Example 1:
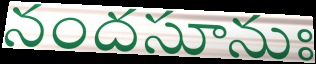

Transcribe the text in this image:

నందసూనుః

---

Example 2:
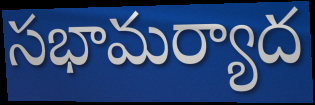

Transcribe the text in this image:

సభామర్యాద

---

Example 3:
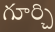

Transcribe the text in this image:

గూర్చి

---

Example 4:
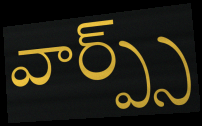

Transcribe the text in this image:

వార్ప్స్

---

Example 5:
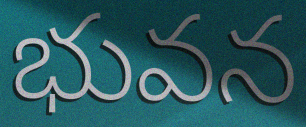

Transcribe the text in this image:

భువన